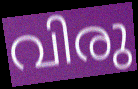
വിരു